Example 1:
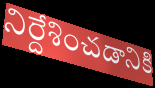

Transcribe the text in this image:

నిర్దేశించడానికి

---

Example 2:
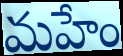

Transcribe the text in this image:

మహేం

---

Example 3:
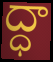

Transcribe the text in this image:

ద్ధా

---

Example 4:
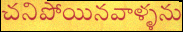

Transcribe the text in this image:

చనిపోయినవాళ్ళను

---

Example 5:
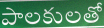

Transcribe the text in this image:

పాలకులతో